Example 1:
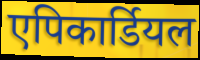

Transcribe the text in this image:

एपिकार्डियल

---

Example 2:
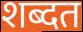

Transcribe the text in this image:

शब्दत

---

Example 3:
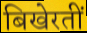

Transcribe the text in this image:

बिखेरतीं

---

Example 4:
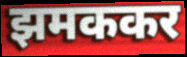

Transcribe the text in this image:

झमककर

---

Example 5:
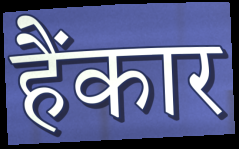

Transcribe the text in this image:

हैंकार